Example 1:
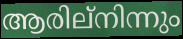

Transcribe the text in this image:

ആരില്നിന്നും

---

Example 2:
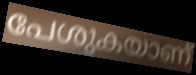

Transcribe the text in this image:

പേശുകയാണ്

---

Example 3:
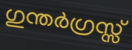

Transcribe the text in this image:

ഗുന്തർഗ്രസ്സ്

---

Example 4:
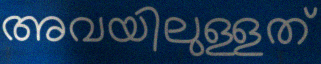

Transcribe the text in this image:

അവയിലുള്ളത്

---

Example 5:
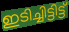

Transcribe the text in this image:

ഇടിച്ചിട്ടിട്ട്